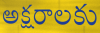
అక్షరాలకు